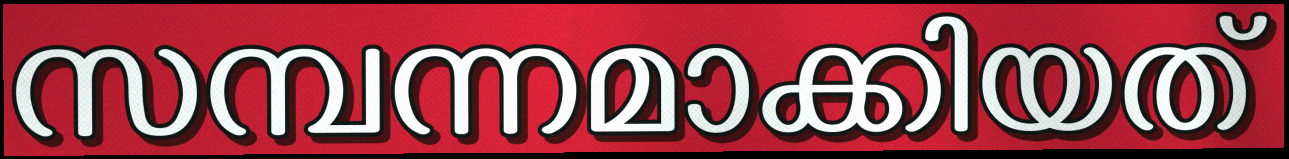
സമ്പന്നമാക്കിയത്